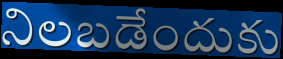
నిలబడేందుకు